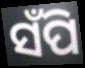
ସଁପି